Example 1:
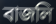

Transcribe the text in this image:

বাজলি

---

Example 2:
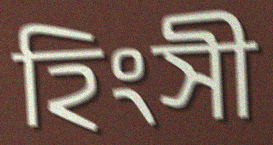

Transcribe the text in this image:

হিংসী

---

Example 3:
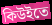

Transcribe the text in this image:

কিউইতে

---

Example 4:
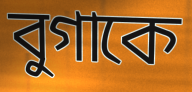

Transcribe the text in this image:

বুগাকে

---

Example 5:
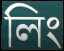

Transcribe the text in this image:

লিং